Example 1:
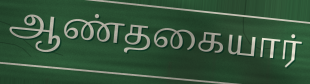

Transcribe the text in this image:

ஆண்தகையார்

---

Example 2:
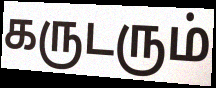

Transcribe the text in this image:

கருடரும்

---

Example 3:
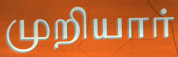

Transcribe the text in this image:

முறியார்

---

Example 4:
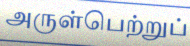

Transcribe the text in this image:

அருள்பெற்றுப்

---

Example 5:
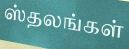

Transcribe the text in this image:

ஸ்தலங்கள்